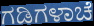
ಗಡಿಗಳಾಚೆ